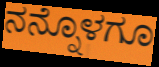
ನನ್ನೊಳಗೂ